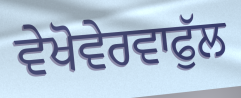
ਵੇਖੋਵੇਰਵਾਫੁੱਲ